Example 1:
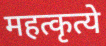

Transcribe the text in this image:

महत्कृत्ये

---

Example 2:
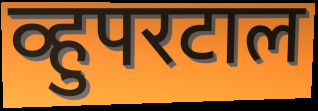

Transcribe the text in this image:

व्हुपरटाल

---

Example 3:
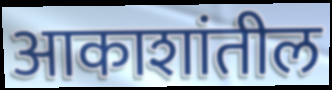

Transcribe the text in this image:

आकाशांतील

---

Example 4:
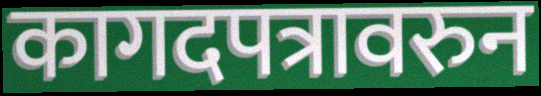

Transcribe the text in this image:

कागदपत्रावरुन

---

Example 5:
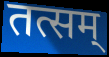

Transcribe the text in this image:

तत्सम्